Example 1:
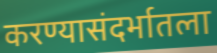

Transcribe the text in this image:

करण्यासंदर्भातला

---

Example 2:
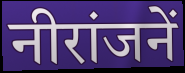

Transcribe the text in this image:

नीरांजनें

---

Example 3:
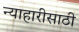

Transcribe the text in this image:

न्याहारीसाठी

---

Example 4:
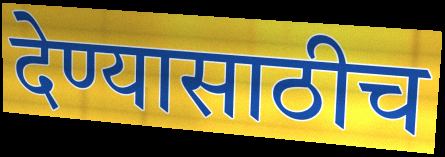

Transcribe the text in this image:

देण्यासाठीच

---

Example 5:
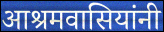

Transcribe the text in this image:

आश्रमवासियांनी